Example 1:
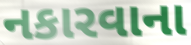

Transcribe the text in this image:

નકારવાના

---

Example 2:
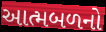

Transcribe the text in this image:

આત્મબળનો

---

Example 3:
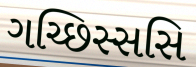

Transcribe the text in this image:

ગચ્છિસ્સસિ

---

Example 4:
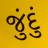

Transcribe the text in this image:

જુંદું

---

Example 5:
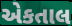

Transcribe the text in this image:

એકતાલ